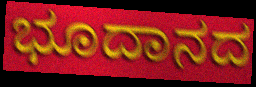
ಭೂದಾನದ